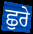
ਛੁਰੇ